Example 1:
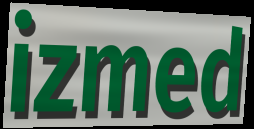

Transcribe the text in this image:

izmed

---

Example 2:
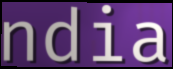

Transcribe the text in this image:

ndia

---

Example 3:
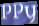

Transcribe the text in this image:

PPy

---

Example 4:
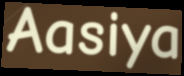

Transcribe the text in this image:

Aasiya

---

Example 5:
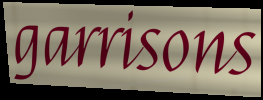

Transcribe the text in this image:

garrisons